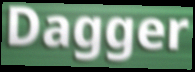
Dagger